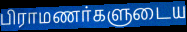
பிராமணர்களுடைய